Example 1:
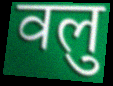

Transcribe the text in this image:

वलु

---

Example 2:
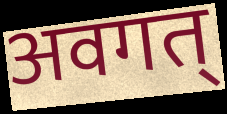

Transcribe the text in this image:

अवगत्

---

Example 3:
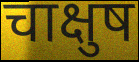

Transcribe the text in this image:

चाक्षुष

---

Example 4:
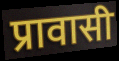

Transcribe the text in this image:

प्रावासी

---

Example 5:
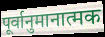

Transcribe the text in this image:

पूर्वानुमानात्मक